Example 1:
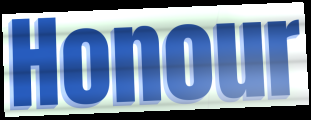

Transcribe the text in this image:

Honour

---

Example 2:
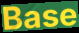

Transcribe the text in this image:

Base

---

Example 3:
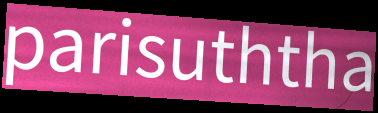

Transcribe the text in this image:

parisuththa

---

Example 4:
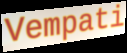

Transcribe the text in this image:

Vempati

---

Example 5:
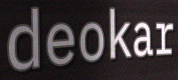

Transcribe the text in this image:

deokar